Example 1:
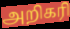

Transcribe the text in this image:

அறிகரி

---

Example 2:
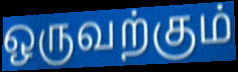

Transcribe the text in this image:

ஒருவற்கும்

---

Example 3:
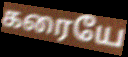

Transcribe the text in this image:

கரையே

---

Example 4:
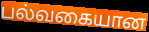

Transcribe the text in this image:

பல்வகையான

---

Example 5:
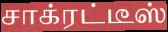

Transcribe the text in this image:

சாக்ரட்டீஸ்